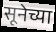
सूनेच्या